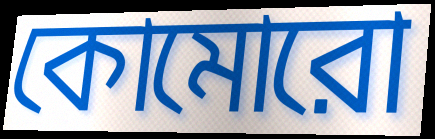
কোমোরো